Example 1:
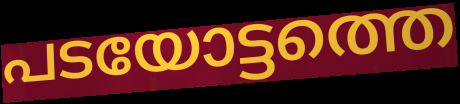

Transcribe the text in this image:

പടയോട്ടത്തെ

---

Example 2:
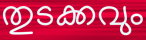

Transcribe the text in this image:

തുടക്കവും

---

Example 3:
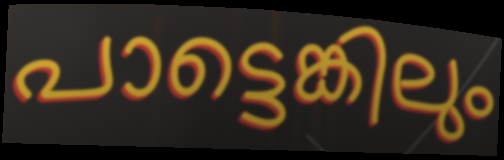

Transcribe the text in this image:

പാട്ടെങ്കിലും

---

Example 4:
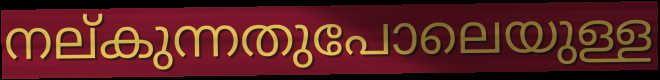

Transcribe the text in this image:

നല്കുന്നതുപോലെയുള്ള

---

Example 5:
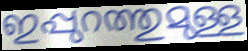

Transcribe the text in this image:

ഇപ്പുറത്തുമുള്ള